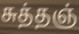
சுத்தஞ்